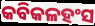
କବିକଳହଂସ